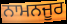
ਨਾਮਨਜੂਰ